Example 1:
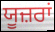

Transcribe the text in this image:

ਯੂਜ਼ਰਾਂ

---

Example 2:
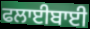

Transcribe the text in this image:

ਫਲਾਈਬਾਈ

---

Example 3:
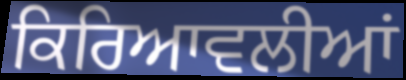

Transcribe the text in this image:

ਕਿਰਿਆਵਲੀਆਂ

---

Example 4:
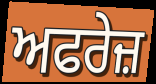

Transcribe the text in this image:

ਅਫਰੇਜ਼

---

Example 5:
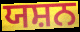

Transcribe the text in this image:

ਯਸ਼ਨ